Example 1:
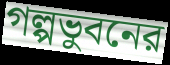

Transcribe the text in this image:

গল্পভুবনের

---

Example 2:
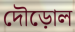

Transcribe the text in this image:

দৌড়োল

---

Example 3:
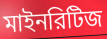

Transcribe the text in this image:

মাইনরিটিজ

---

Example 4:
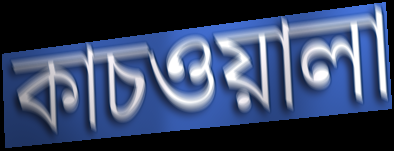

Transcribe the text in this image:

কাচওয়ালা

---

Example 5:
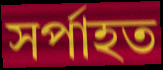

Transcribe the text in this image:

সর্পাহত